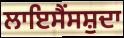
ਲਾਇਸੈਂਸਸ਼ੁਦਾ